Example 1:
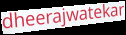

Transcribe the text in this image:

dheerajwatekar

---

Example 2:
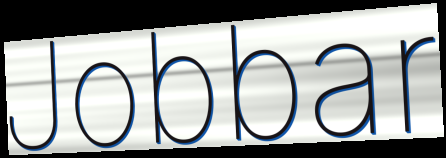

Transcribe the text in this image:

Jobbar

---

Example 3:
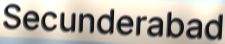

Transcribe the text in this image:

Secunderabad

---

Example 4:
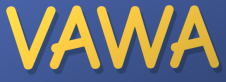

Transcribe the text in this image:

VAWA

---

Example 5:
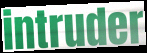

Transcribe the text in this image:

intruder